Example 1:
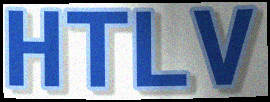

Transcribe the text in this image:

HTLV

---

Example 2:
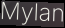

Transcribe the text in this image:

Mylan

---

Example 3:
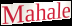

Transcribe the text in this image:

Mahale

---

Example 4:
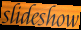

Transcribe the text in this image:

slideshow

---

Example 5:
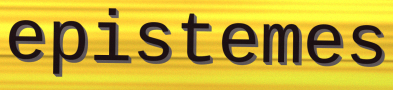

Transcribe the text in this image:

epistemes